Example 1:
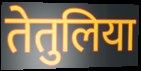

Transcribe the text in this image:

तेतुलिया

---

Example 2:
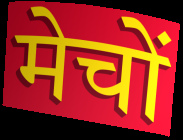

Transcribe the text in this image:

मेचों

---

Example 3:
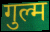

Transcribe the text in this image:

गुल्म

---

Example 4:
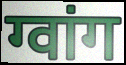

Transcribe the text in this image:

ग्वांग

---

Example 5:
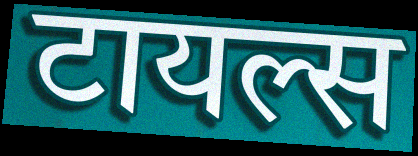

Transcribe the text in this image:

टायल्स